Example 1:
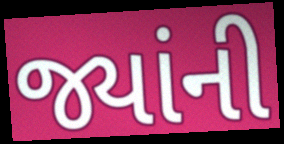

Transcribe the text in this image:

જ્યાંની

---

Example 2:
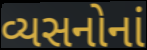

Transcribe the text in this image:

વ્યસનોનાં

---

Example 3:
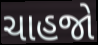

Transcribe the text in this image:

ચાહજો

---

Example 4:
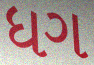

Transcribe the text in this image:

ધગ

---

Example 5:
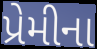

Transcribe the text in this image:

પ્રેમીના